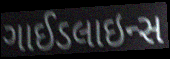
ગાઈડલાઇન્સ